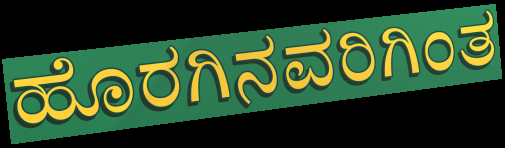
ಹೊರಗಿನವರಿಗಿಂತ